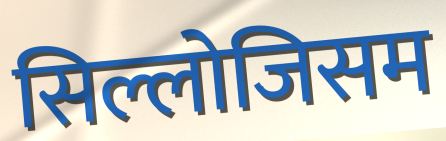
सिल्लोजिसम